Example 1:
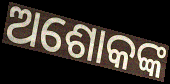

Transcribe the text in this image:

ଅଶୋକଙ୍କ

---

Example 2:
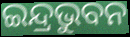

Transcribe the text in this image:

ଇନ୍ଦ୍ରଭୁବନ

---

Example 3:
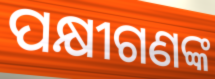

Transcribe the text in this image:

ପକ୍ଷୀଗଣଙ୍କ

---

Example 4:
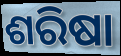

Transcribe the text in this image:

ଶରିଷା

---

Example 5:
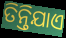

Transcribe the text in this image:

ତିନ୍ତିଯାଏ